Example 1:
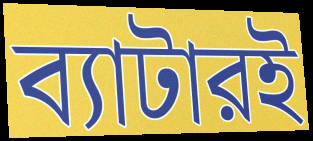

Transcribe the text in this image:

ব্যাটারই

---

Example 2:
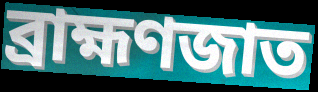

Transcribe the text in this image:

ব্রাহ্মণজাত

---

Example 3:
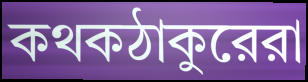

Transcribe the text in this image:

কথকঠাকুরেরা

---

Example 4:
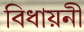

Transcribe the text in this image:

বিধায়নী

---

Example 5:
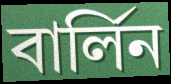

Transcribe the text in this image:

বার্লিন